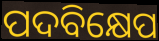
ପଦବିକ୍ଷେପ